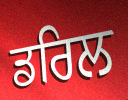
ਡਰਿਲ